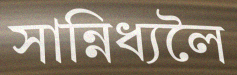
সান্নিধ্যলৈ